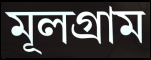
মূলগ্রাম